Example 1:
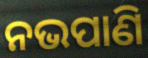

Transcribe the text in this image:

ନଭପାଣି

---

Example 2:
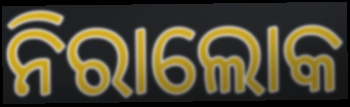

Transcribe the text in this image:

ନିରାଲୋକ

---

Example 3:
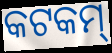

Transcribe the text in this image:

କଟକମ୍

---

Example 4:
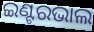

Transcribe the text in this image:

ଇଣ୍ଟରଭାଲ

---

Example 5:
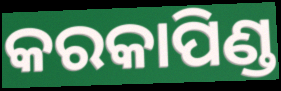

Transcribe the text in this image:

କରକାପିଣ୍ଡ